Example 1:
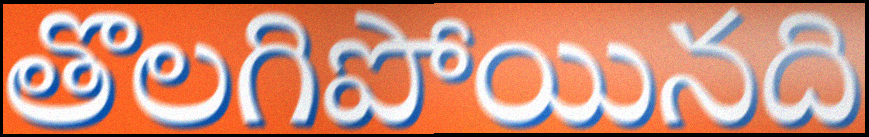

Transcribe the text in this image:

తొలగిపోయినది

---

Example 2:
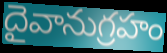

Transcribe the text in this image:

దైవానుగ్రహం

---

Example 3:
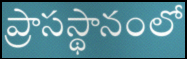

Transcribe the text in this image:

ప్రాసస్థానంలో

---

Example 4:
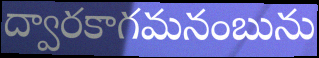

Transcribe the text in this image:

ద్వారకాగమనంబును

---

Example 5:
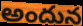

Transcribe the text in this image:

అందున